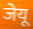
जेयू